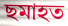
ছমাহত